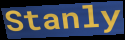
Stanly